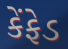
કેંફેડ